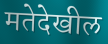
मतेदेखील